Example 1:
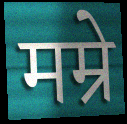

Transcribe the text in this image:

मम्रे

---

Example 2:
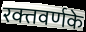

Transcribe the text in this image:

रक्तवर्णके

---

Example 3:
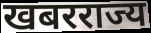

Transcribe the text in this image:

खबरराज्य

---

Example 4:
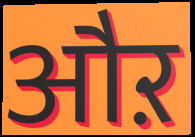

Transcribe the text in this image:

औऱ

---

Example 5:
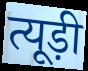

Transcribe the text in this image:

त्यूड़ी